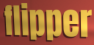
flipper